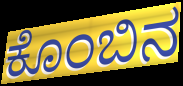
ಕೊಂಬಿನ